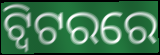
ଟ୍ବିଟରରେ